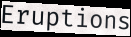
Eruptions